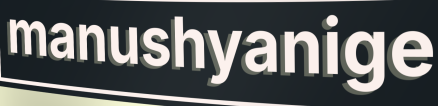
manushyanige